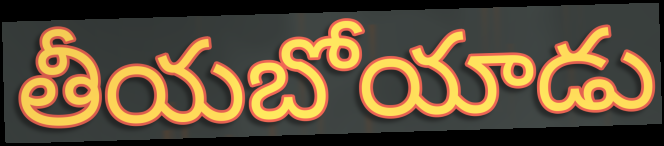
తీయబోయాడు